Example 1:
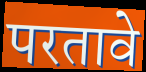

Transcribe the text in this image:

परतावे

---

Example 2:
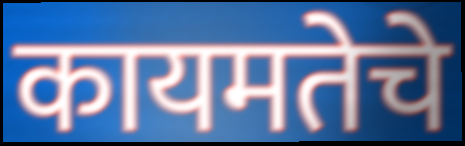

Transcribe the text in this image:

कायमतेचे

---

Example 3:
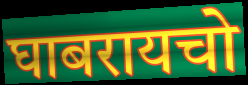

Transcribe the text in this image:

घाबरायचो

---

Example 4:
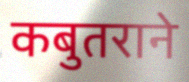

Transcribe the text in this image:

कबुतराने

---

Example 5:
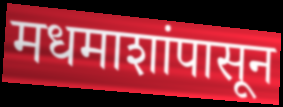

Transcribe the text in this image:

मधमाशांपासून